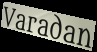
Varadan